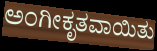
ಅಂಗೀಕೃತವಾಯಿತು